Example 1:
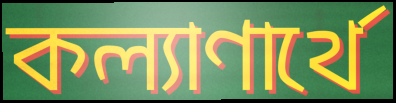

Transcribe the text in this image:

কল্যাণার্থে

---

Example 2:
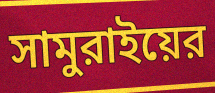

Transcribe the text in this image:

সামুরাইয়ের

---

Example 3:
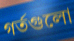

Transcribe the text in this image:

গর্তগুলো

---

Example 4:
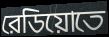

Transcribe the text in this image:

রেডিয়োতে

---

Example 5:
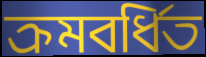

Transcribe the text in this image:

ক্রমবর্ধিত